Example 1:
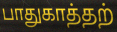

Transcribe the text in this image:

பாதுகாத்தற்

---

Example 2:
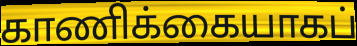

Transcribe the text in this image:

காணிக்கையாகப்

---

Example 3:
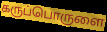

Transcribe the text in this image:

கருப்பொருளை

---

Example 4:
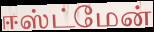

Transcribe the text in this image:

ஈஸ்ட்மேன்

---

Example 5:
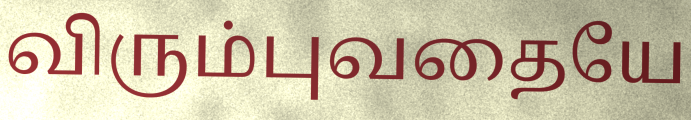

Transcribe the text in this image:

விரும்புவதையே